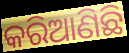
କରିଆଣିଛି